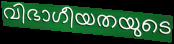
വിഭാഗീയതയുടെ